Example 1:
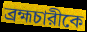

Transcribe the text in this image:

ব্রহ্মচারীকে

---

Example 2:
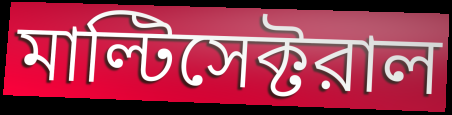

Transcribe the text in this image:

মাল্টিসেক্টরাল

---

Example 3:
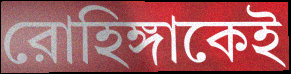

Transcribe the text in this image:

রোহিঙ্গাকেই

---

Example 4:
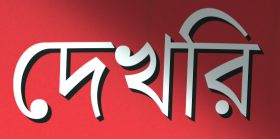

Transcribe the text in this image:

দেখরি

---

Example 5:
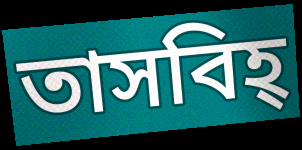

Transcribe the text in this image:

তাসবিহ্